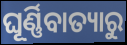
ଘୂର୍ଣ୍ଣିବାତ୍ୟାରୁ